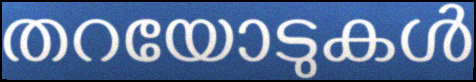
തറയോടുകൾ